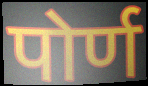
पोर्ण